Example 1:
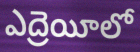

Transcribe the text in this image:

ఎద్రెయీలో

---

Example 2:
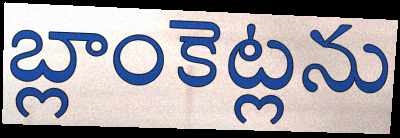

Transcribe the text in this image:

బ్లాంకెట్లను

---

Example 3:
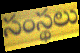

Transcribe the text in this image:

సంస్థలు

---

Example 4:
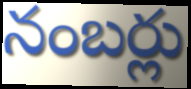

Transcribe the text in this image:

నంబర్లు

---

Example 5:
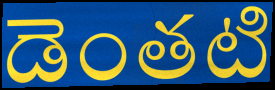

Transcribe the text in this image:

డెంతటి